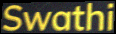
Swathi